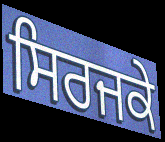
ਸਿਰਜਕੇ